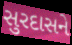
સુરદાસને